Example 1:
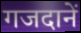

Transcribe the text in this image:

गजदानें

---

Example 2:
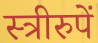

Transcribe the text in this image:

स्त्रीरुपें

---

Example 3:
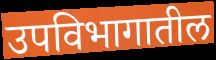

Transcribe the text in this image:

उपविभागातील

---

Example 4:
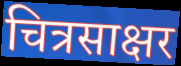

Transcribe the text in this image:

चित्रसाक्षर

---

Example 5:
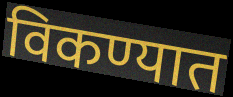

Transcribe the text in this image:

विकण्यात